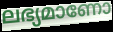
ലഭ്യമാണോ